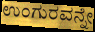
ಉಂಗುರವನ್ನೇ